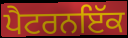
ਪੈਟਰਨਇੱਕ